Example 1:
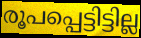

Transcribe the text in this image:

രൂപപ്പെട്ടിട്ടില്ല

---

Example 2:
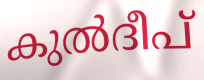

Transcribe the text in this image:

കുൽദീപ്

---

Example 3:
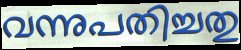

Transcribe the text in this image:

വന്നുപതിച്ചതു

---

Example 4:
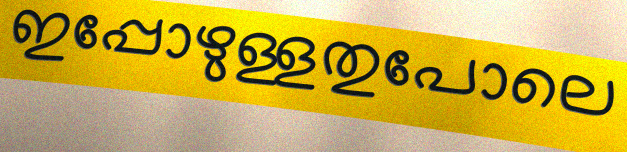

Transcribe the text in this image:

ഇപ്പോഴുള്ളതുപോലെ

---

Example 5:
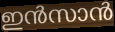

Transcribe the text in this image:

ഇൻസാൻ